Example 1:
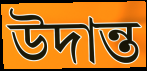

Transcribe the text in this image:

উদান্ত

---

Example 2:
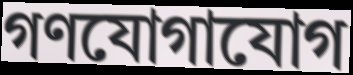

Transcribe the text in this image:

গণযোগাযোগ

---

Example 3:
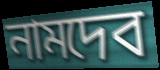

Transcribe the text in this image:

নামদেব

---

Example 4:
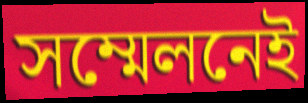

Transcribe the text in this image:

সম্মেলনেই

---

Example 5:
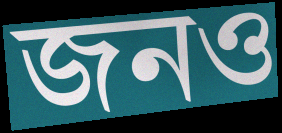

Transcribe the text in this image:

জনও